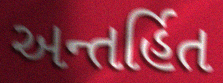
અન્તર્હિત